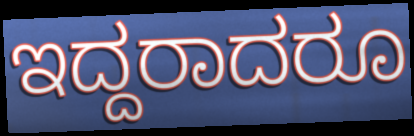
ಇದ್ದರಾದರೂ